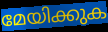
മേയിക്കുക